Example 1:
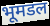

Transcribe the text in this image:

भूमडल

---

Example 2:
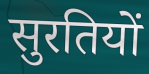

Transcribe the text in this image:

सुरतियों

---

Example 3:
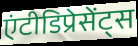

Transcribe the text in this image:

एंटीडिप्रेसेंट्स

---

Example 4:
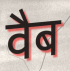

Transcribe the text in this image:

वैब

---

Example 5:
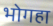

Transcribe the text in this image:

भोगहा